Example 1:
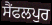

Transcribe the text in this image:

ਸੈਂਫਲਪੁਰ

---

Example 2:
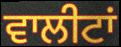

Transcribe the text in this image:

ਵਾਲੀਟਾਂ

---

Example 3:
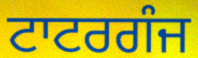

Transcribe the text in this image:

ਟਾਟਰਗੰਜ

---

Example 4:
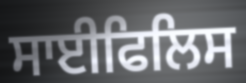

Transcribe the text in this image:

ਸਾਈਫਿਲਿਸ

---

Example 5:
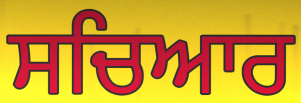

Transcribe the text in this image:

ਸਚਿਆਰ